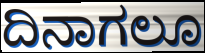
ದಿನಾಗಲೂ